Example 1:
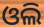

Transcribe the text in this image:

ଓଲି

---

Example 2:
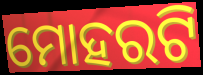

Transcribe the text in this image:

ମୋହରଟି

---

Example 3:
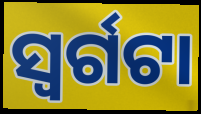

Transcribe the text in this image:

ସ୍ୱର୍ଗଟା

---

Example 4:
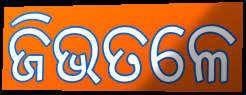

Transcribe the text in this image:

ଜିଭତଳେ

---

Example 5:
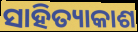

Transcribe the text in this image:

ସାହିତ୍ୟାକାଶ